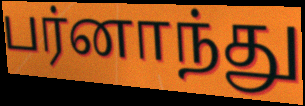
பர்னாந்து